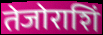
तेजोराशिं